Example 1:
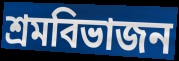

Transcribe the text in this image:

শ্রমবিভাজন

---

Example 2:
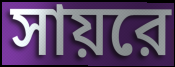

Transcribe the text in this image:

সায়রে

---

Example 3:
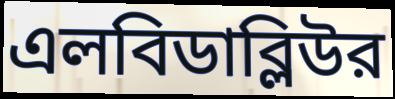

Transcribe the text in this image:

এলবিডাব্লিউর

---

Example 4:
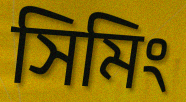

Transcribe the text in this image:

সিমিং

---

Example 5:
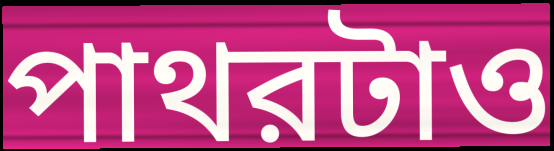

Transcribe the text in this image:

পাথরটাও